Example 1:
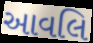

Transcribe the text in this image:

આવલિ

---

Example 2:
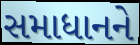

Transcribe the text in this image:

સમાધાનને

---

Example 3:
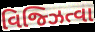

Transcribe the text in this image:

વિજ્ઝિત્વા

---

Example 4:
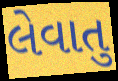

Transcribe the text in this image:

લેવાતુ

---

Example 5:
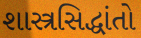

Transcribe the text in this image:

શાસ્ત્રસિદ્ધાંતો